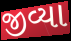
જીવ્યા